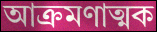
আক্রমণাত্মক